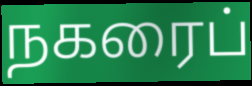
நகரைப்